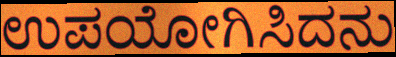
ಉಪಯೋಗಿಸಿದನು